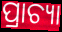
ପ୍ରାଚ୍ୟା